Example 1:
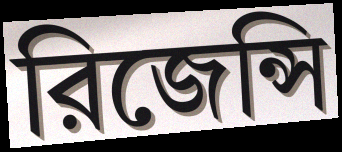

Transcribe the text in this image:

রিজেন্সি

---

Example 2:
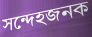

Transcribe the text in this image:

সন্দেহজনক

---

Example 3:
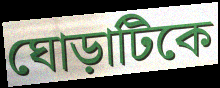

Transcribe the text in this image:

ঘোড়াটিকে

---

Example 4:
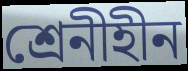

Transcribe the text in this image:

শ্রেনীহীন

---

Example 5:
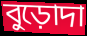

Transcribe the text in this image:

বুড়োদা